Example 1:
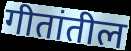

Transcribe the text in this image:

गीतांतील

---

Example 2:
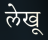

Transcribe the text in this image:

लेखू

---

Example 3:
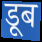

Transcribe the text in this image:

डूब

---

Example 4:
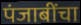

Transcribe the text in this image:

पंजाबींचा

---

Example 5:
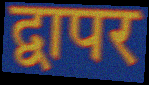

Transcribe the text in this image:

द्वापर